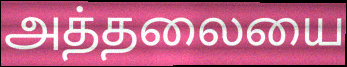
அத்தலையை